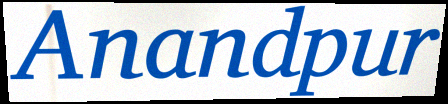
Anandpur